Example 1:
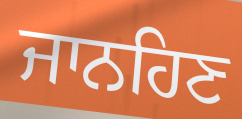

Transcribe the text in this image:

ਜਾਨਹਿਣ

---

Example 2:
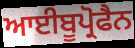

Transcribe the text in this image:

ਆਈਬੂਪ੍ਰੋਫੈਨ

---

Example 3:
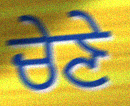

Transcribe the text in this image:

ਚੇਣੇ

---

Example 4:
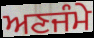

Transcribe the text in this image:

ਅਣਜੰਮੇ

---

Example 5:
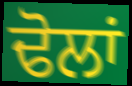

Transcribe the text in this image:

ਢੋਲਾਂ